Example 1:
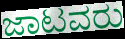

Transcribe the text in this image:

ಜಾಟವರು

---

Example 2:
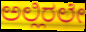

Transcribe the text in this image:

ಅಲ್ಲಿರಲೇ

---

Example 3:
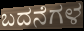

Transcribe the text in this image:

ಬದನೆಗಳ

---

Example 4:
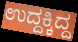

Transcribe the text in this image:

ಉದ್ದಕ್ಕಿದ್ದ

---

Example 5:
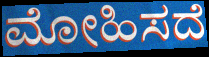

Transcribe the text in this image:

ಮೋಹಿಸದೆ